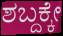
ಶಬ್ದಕ್ಕೇ